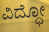
ವಿದ್ಧೋ